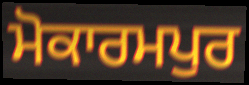
ਮੋਕਾਰਮਪੁਰ